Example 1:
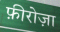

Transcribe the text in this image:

फ़ीरोज़ा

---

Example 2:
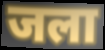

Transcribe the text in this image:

जला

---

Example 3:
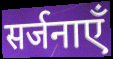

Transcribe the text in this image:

सर्जनाएँ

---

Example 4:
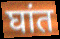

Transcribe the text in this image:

घांत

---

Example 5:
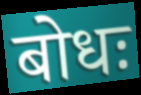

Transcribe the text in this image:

बोधः